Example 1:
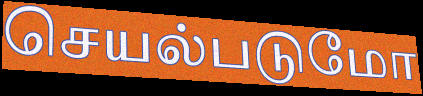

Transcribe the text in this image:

செயல்படுமோ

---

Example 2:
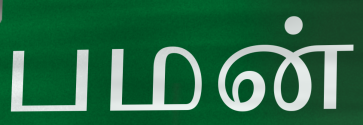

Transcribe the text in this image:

பமன்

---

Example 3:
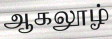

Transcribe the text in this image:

ஆகலூழ்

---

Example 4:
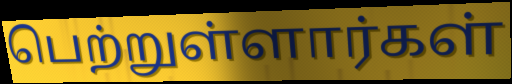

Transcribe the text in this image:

பெற்றுள்ளார்கள்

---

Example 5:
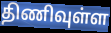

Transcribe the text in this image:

திணிவுள்ள